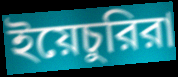
ইয়েচুরিরা